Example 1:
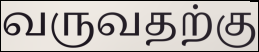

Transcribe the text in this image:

வருவதற்கு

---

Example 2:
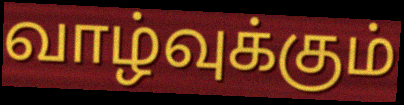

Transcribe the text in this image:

வாழ்வுக்கும்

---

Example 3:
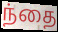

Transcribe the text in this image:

ந்தை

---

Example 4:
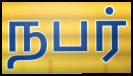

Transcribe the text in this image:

நபர்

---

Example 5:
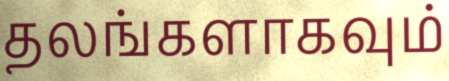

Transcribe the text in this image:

தலங்களாகவும்